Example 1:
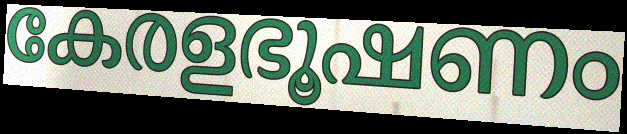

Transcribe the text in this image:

കേരളഭൂഷണം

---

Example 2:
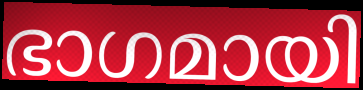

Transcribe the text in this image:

ഭാഗമായി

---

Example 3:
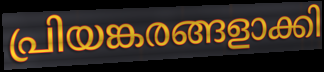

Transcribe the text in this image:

പ്രിയങ്കരങ്ങളാക്കി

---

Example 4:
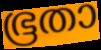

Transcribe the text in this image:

ഭൂതാ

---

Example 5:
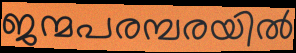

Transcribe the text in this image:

ജന്മപരമ്പരയിൽ